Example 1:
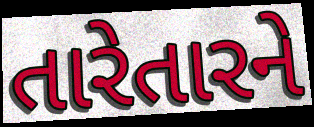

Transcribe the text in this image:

તારેતારને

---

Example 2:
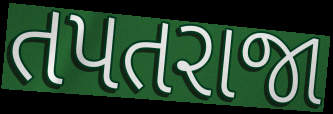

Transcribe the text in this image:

તપતરાજા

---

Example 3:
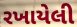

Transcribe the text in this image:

રખાયેલી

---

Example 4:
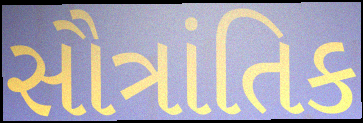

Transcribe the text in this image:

સૌત્રાંતિક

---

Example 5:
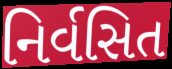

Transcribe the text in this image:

નિર્વસિત